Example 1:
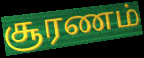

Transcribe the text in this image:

சூரணம்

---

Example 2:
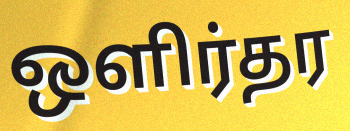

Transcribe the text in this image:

ஒளிர்தர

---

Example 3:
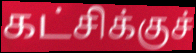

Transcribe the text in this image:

கட்சிக்குச்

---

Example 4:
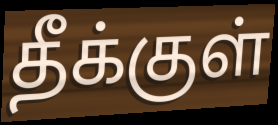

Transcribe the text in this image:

தீக்குள்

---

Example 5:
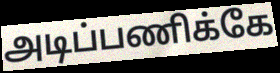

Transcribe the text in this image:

அடிப்பணிக்கே